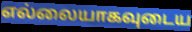
எல்லையாகவுடைய